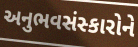
અનુભવસંસ્કારોને